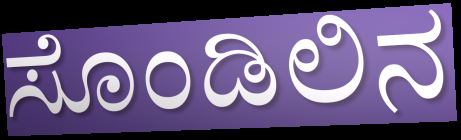
ಸೊಂಡಿಲಿನ